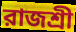
রাজশ্রী